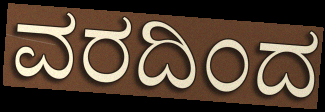
ವರದಿಂದ